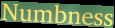
Numbness